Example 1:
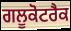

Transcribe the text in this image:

ਗਲੂਕੋਟਰੈਕ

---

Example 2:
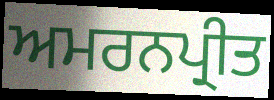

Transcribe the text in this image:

ਅਮਰਨਪ੍ਰੀਤ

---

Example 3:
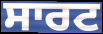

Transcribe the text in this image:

ਸਾਰਟ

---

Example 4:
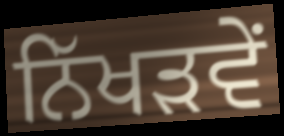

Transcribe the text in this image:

ਨਿੱਖੜਵੇਂ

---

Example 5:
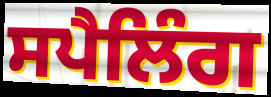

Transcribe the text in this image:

ਸਪੈਲਿੰਗ